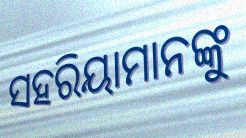
ସହରିୟାମାନଙ୍କୁ